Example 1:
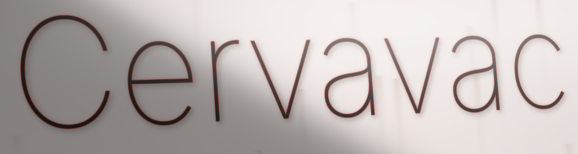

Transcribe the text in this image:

Cervavac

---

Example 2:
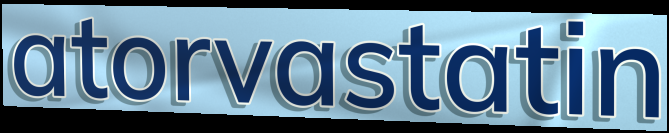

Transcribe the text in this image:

atorvastatin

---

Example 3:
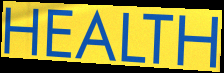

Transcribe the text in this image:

HEALTH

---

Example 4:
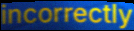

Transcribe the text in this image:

incorrectly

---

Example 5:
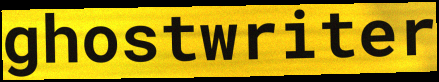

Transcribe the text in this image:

ghostwriter